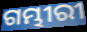
ଗମ୍ଭୀରୀ